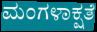
ಮಂಗಳಾಕ್ಷತೆ